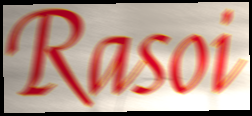
Rasoi